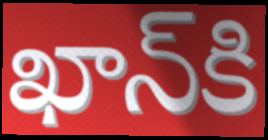
ఖాన్‌కి